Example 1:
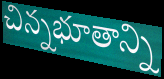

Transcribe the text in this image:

చిన్నభూతాన్ని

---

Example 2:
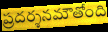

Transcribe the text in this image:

ప్రదర్శనమౌతోంది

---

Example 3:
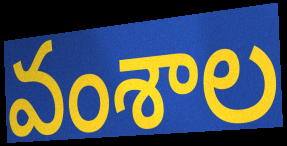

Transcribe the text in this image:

వంశాల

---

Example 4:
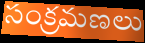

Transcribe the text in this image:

సంక్రమణలు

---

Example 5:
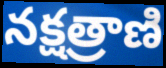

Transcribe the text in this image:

నక్షత్రాణి